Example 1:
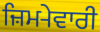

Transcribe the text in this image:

ਜ਼ਿਮ੍ਮੇਵਾਰੀ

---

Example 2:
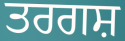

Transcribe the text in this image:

ਤਰਗਸ਼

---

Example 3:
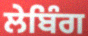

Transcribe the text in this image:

ਲੇਬਿੰਗ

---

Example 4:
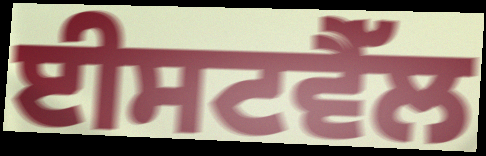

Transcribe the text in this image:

ਈਸਟਵੈੱਲ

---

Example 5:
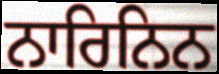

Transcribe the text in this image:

ਨਾਰਿਨਿਨ